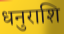
धनुराशि